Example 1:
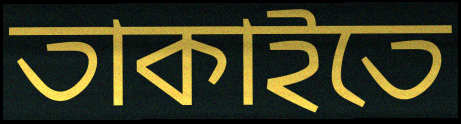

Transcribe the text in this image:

তাকাইতে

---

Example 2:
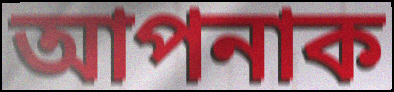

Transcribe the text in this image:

আপনাক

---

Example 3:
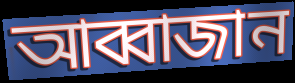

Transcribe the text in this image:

আব্বাজান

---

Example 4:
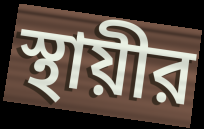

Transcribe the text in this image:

স্থায়ীর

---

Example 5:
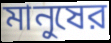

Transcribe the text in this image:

মানুষের